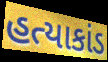
હત્યાકાંડ